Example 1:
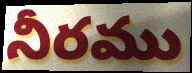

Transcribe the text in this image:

నీరము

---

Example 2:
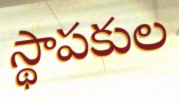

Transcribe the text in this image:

స్థాపకుల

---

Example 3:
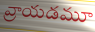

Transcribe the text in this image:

వ్రాయడమూ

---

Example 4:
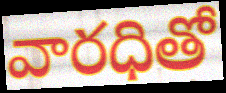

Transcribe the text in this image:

వారధితో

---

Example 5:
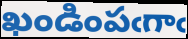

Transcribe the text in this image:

ఖండింపఁగాఁ